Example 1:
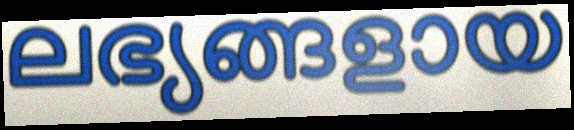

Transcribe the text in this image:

ലഭ്യങ്ങളായ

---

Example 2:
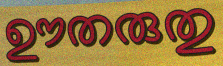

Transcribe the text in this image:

ഊതരുതു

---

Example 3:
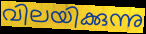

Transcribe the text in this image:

വിലയിക്കുന്നു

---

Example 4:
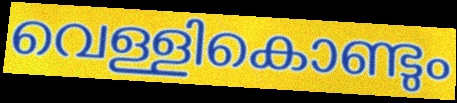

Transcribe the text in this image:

വെള്ളികൊണ്ടും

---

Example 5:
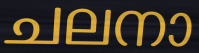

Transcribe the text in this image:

ചലനാ